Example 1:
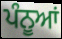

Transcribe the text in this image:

ਪੰਨੂਆਂ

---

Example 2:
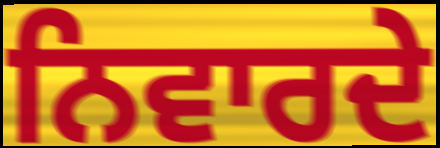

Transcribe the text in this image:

ਨਿਵਾਰਦੇ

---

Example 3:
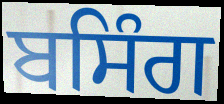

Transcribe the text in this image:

ਬਸਿੰਗ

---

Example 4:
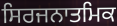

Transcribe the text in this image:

ਸਿਰਜਨਾਤਮਿਕ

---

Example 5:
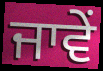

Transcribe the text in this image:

ਜਾਵੇਂ